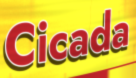
Cicada